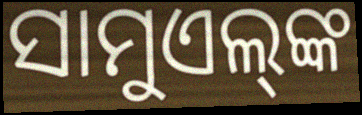
ସାମୁଏଲ୍‌ଙ୍କ